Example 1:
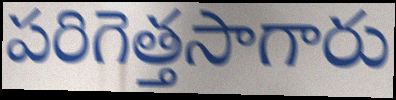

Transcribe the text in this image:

పరిగెత్తసాగారు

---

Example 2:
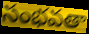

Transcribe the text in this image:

సంభవతా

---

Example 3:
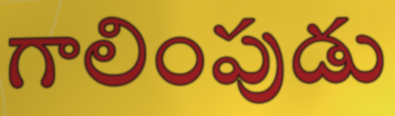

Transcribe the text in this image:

గాలింపుడు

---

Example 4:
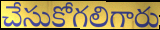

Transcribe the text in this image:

చేసుకోగలిగారు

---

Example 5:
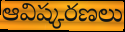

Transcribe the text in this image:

ఆవిష్కరణలు